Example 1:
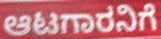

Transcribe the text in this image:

ಆಟಗಾರನಿಗೆ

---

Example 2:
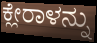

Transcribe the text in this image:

ಕ್ಲೇರಾಳನ್ನು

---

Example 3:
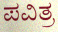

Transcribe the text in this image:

ಪವಿತ್ರ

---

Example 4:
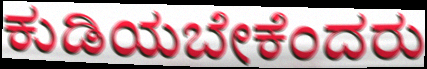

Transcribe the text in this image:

ಕುಡಿಯಬೇಕೆಂದರು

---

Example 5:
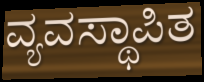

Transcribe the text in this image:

ವ್ಯವಸ್ಥಾಪಿತ